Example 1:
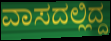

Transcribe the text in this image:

ವಾಸದಲ್ಲಿದ್ದ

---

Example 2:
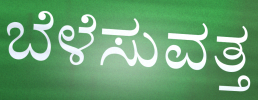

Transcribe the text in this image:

ಬೆಳೆಸುವತ್ತ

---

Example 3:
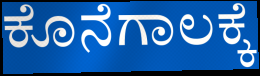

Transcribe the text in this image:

ಕೊನೆಗಾಲಕ್ಕೆ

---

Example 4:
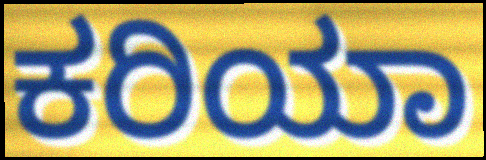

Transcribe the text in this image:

ಕರಿಯಾ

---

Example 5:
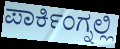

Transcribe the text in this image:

ಪಾರ್ಕಿಂಗ್ನಲ್ಲಿ